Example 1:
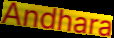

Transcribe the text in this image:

Andhara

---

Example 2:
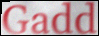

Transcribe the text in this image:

Gadd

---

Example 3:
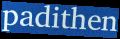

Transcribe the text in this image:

padithen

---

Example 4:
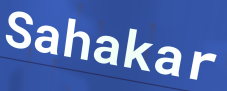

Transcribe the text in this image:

Sahakar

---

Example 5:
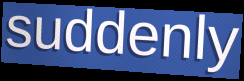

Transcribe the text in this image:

suddenly